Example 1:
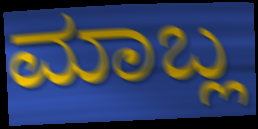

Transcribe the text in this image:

ಮಾಬ್ಲ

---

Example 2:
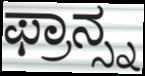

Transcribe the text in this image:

ಫ್ರಾನ್ಸ್ನ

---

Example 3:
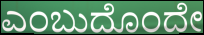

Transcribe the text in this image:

ಎಂಬುದೊಂದೇ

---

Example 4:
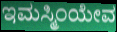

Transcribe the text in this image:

ಇಮಸ್ಮಿಂಯೇವ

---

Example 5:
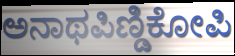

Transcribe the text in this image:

ಅನಾಥಪಿಣ್ಡಿಕೋಪಿ